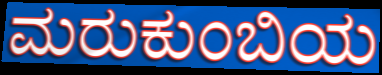
ಮರುಕುಂಬಿಯ